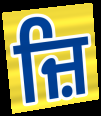
ਜ਼ਿ